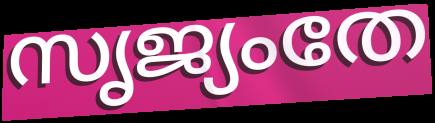
സൃജ്യംതേ